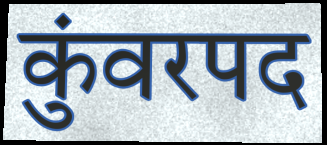
कुंवरपद